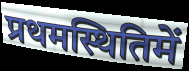
प्रथमस्थितिमें